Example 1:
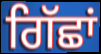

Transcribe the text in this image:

ਗਿੱਛਾਂ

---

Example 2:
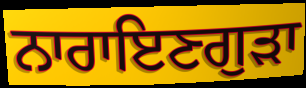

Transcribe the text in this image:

ਨਾਰਾਇਣਗੁੜਾ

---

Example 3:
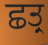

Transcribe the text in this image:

ਛਤ੍ਰ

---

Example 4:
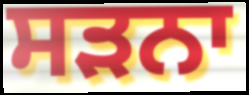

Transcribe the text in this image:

ਸੜਨਾ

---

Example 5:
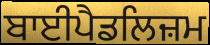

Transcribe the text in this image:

ਬਾਈਪੈਡਲਿਜ਼ਮ